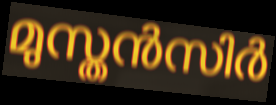
മുസ്തൻസിർ